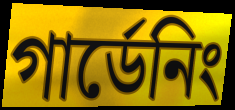
গার্ডেনিং